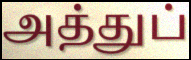
அத்துப்